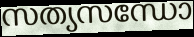
സത്യസന്ധോ